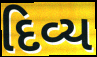
દિવ્ય